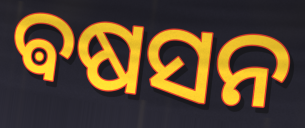
ଵଷସନ